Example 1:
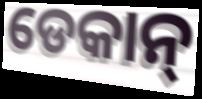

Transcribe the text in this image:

ଡେକାନ୍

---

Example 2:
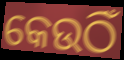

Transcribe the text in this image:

କେଉଠିଁ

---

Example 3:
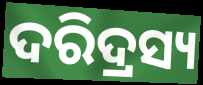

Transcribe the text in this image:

ଦରିଦ୍ରସ୍ୟ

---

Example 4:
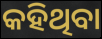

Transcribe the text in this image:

କହିଥିବା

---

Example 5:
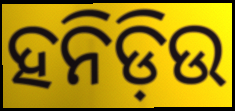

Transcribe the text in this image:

ହନିଡ଼ିଉ